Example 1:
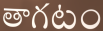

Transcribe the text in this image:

తాగటం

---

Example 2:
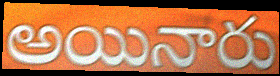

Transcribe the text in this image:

అయినారు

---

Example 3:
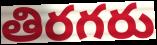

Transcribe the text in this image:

తిరగరు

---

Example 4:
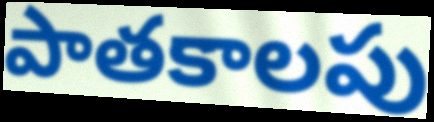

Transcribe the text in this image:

పాతకాలపు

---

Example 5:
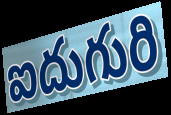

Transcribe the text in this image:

ఐదుగురి